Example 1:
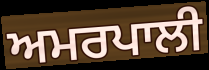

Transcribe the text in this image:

ਅਮਰਪਾਲੀ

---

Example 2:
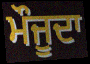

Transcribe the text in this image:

ਮੌਜੂਦਾ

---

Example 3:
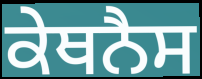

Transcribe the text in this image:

ਕੇਥਨੈਸ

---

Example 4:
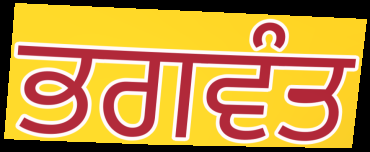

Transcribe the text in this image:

ਭਗਵੰਤ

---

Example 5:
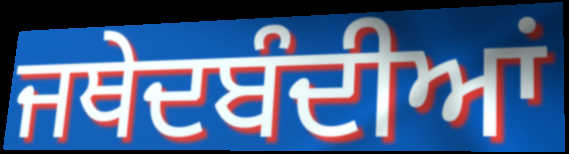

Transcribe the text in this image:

ਜਥੇਦਬੰਦੀਆਂ